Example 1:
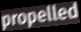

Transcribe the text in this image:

propelled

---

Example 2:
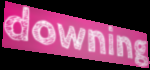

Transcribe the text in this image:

downing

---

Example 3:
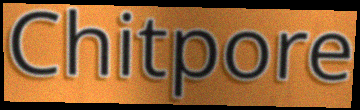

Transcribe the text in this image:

Chitpore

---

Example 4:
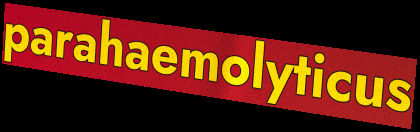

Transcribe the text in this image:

parahaemolyticus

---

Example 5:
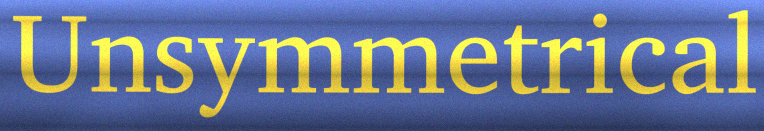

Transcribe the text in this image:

Unsymmetrical